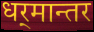
धर्मान्तर